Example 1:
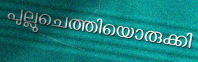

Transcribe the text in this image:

പുല്ലുചെത്തിയൊരുക്കി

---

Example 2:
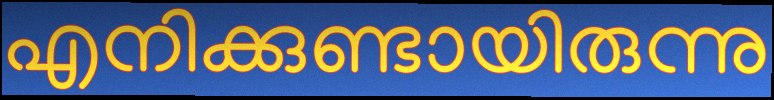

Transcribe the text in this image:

എനിക്കുണ്ടായിരുന്നു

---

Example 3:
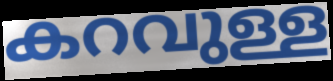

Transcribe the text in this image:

കറവുള്ള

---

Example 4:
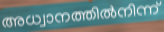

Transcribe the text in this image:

അധ്വാനത്തിൽനിന്ന്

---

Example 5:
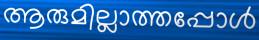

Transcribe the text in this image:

ആരുമില്ലാത്തപ്പോൾ